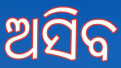
ଅସିବ